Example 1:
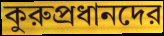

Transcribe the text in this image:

কুরুপ্রধানদের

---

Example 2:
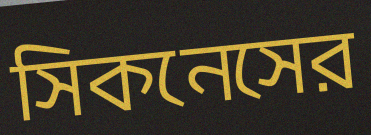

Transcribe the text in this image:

সিকনেসের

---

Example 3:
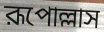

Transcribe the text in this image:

রূপোল্লাস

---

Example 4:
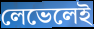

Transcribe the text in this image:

লেভেলেই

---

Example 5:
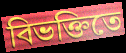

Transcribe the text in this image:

বিভক্তিতে